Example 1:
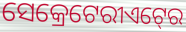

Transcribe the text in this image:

ସେକ୍ରେଟେରୀଏଟ୍‍ରେ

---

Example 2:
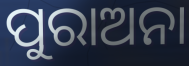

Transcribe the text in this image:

ପୁରାଅନା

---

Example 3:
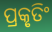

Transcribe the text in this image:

ପ୍ରକୃତିଂ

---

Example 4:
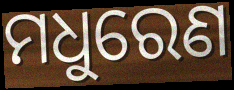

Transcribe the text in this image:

ମଧୁରେଣ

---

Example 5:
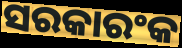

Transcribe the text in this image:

ସରକାରଂକ